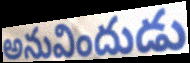
అనువిందుడు